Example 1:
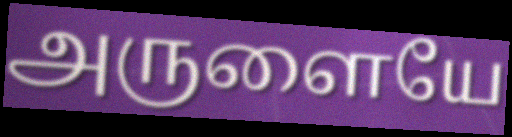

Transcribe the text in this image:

அருளையே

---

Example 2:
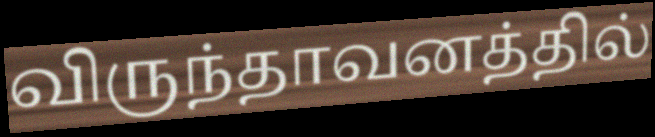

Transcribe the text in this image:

விருந்தாவனத்தில்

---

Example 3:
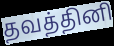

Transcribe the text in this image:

தவத்தினி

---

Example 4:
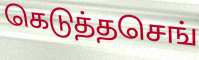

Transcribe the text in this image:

கெடுத்தசெங்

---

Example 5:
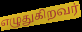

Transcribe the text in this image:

எழுதுகிறவர்